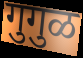
गुगुळ